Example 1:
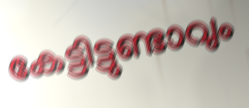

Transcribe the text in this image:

കേട്ടിട്ടുണ്ടാവും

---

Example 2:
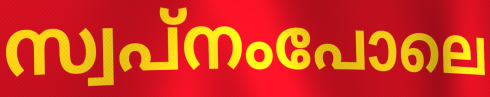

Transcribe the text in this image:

സ്വപ്നംപോലെ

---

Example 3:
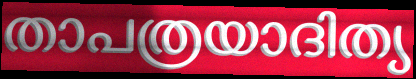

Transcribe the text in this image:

താപത്രയാദിത്യ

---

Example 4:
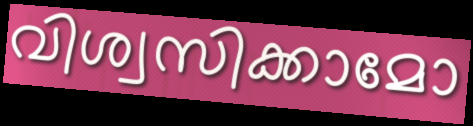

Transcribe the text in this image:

വിശ്വസിക്കാമോ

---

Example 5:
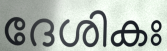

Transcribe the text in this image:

ദേശികഃ